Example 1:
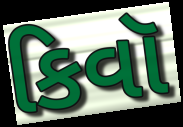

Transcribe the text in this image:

કિવૉ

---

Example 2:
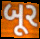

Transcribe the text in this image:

બૂર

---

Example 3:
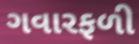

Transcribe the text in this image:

ગવારફળી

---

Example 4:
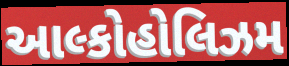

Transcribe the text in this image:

આલ્કોહોલિઝમ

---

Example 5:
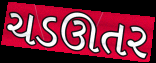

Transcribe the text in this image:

ચડઊતર